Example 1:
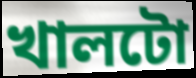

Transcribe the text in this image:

খালটো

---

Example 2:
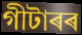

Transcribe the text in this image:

গীটাৰৰ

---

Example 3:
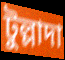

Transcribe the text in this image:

টুল্লাদা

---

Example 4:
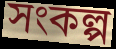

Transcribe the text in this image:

সংকল্প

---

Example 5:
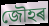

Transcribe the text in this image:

জৌহৰ